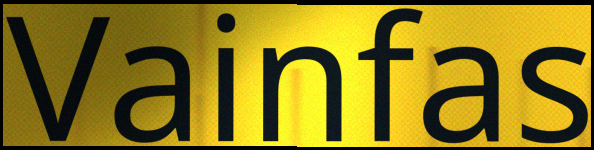
Vainfas